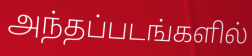
அந்தப்படங்களில்